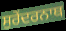
ਸੁਰੇਂਦਰਨਾਥ